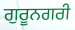
ਗੁਰੂਨਗਰੀ